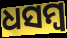
ଧସମ୍ବ